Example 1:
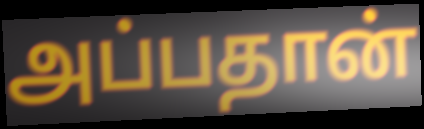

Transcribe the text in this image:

அப்பதான்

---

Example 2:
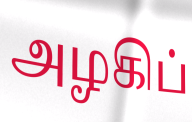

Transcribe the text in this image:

அழகிப்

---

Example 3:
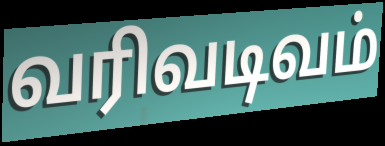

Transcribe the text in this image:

வரிவடிவம்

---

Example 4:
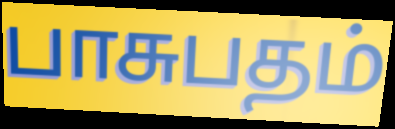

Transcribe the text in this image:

பாசுபதம்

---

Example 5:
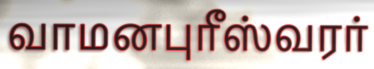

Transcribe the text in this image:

வாமனபுரீஸ்வரர்